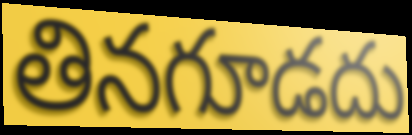
తినగూడదు